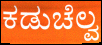
ಕಡುಚೆಲ್ವ